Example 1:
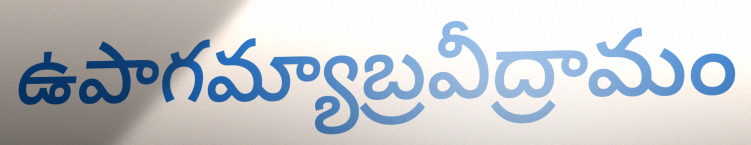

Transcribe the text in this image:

ఉపాగమ్యాబ్రవీద్రామం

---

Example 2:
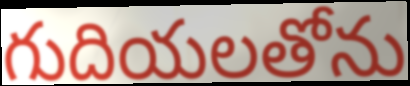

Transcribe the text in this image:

గుదియలతోను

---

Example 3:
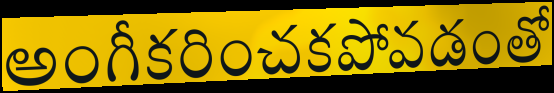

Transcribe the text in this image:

అంగీకరించకపోవడంతో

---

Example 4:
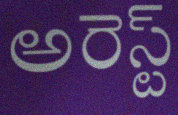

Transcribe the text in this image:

అరెస్ట్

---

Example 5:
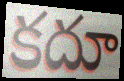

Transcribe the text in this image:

కదూ